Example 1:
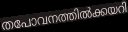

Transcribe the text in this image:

തപോവനത്തിൽക്കയറി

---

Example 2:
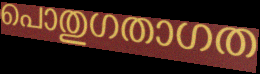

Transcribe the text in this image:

പൊതുഗതാഗത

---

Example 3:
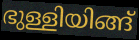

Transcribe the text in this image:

ഭുള്ളിയിങ്ങ്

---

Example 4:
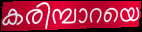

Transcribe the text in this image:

കരിമ്പാറയെ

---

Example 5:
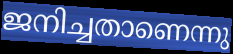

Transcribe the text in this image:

ജനിച്ചതാണെന്നു